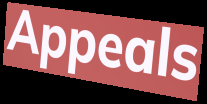
Appeals